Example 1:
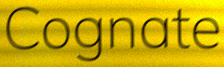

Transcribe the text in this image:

Cognate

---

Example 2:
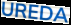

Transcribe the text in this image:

UREDA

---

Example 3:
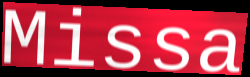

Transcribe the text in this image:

Missa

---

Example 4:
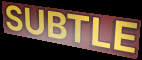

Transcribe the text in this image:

SUBTLE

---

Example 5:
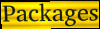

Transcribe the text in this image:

Packages